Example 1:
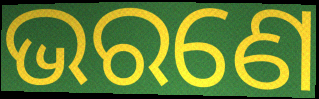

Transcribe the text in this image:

ଭରଣେ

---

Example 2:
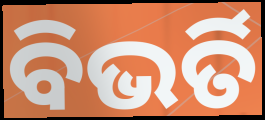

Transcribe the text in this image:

ବିଭର୍ତି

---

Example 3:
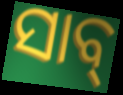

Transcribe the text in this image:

ସାବ୍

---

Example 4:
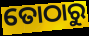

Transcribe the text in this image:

ତୋଠାରୁ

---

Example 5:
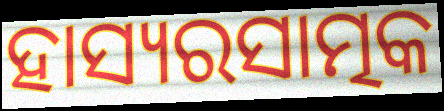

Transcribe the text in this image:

ହାସ୍ୟରସାତ୍ମକ